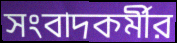
সংবাদকর্মীর